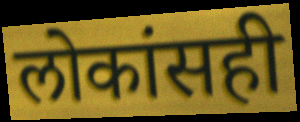
लोकांसही